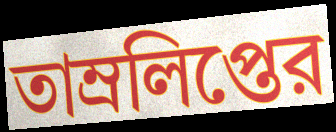
তাম্রলিপ্তের